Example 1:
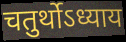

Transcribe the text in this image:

चतुर्थोऽध्याय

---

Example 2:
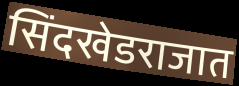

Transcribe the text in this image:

सिंदखेडराजात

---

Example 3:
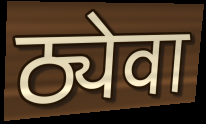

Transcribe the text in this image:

ठ्येवा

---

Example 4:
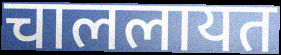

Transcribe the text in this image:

चाललायत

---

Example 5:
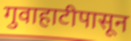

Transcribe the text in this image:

गुवाहाटीपासून